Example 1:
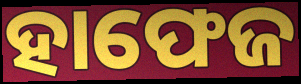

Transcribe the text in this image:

ହାଫେଜ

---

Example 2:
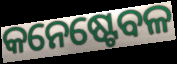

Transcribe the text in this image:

କନେଷ୍ଟେବଳ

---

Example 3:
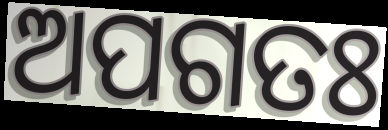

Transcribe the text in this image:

ଅପଗତଃ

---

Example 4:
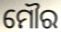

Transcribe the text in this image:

ମୌର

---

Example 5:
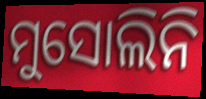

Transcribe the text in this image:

ମୁସୋଲିନି